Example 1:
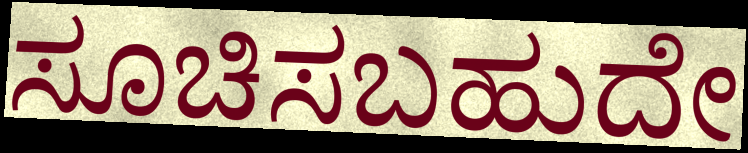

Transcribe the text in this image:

ಸೂಚಿಸಬಹುದೇ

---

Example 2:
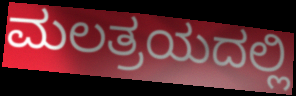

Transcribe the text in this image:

ಮಲತ್ರಯದಲ್ಲಿ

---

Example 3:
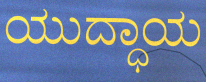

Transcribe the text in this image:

ಯುದ್ಧಾಯ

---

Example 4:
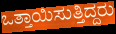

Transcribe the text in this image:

ಒತ್ತಾಯಿಸುತ್ತಿದ್ದರು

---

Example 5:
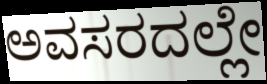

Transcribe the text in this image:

ಅವಸರದಲ್ಲೇ